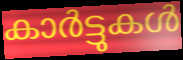
കാർട്ടുകൾ